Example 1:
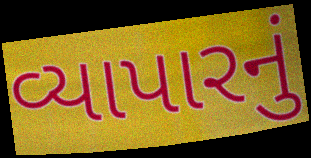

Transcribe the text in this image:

વ્યાપારનું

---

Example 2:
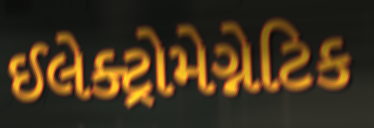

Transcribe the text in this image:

ઈલેક્ટ્રોમેગ્નેટિક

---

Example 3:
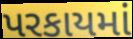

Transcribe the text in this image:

પરકાયમાં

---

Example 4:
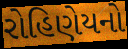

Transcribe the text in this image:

રોહિણેયનો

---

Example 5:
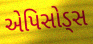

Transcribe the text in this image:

એપિસોડ્સ